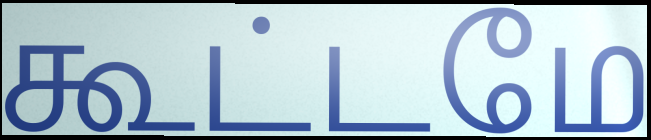
கூட்டமே